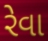
રેવા